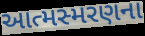
આત્મસ્મરણના